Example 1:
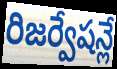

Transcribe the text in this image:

రిజర్వేషన్లే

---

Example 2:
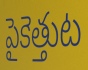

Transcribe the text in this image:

పైకెత్తుట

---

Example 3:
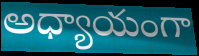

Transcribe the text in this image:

అధ్యాయంగా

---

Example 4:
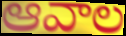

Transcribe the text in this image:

ఆవాల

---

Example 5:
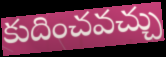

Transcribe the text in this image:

కుదించవచ్చు